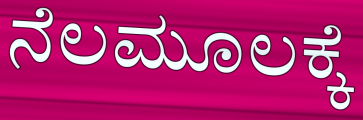
ನೆಲಮೂಲಕ್ಕೆ